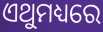
ଏଥୁମଧ୍ୟରେ